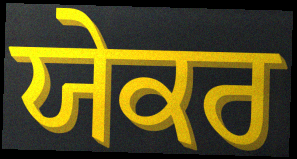
ਯੇਕਰ